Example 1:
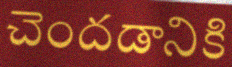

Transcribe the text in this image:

చెందడానికి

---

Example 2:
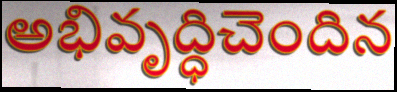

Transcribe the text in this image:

అభివృద్ధిచెందిన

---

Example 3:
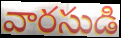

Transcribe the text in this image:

వారసుడి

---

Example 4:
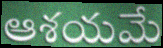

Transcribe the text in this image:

ఆశయమే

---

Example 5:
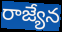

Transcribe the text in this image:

రాజ్యేన